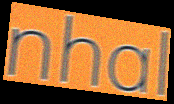
nhal